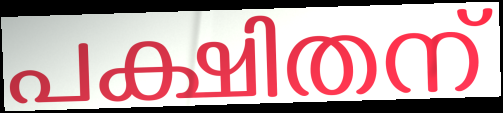
പക്ഷിതന്